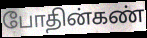
போதின்கண்